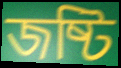
জষ্টি